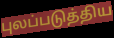
புலப்படுத்திய